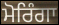
ਮੋਰਿੰਗਾ